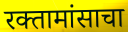
रक्तामांसाचा